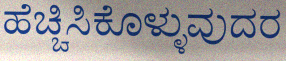
ಹೆಚ್ಚಿಸಿಕೊಳ್ಳುವುದರ